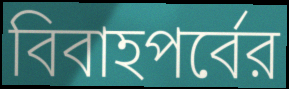
বিবাহপর্বের